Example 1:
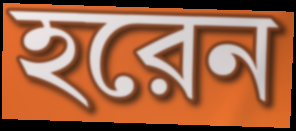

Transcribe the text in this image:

হরেন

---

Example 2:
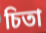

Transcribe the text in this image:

চিতা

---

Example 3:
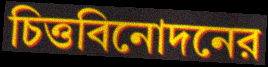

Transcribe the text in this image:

চিত্তবিনোদনের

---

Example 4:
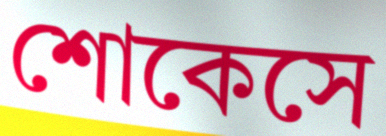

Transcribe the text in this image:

শোকেসে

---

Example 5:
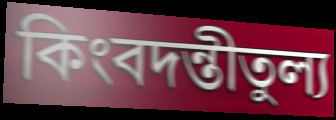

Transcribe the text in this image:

কিংবদন্তীতুল্য